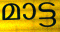
മാട്ട